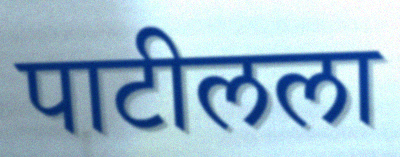
पाटीलला